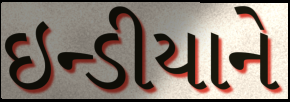
ઇન્ડીયાને